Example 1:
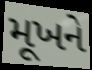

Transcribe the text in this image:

મૂખને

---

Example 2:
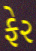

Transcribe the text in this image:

ફેર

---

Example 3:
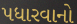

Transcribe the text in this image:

પધારવાનો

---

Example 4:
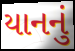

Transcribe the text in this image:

યાનનું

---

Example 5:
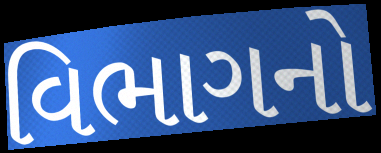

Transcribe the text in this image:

વિભાગનો